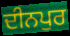
ਦੀਨਪੁਰ